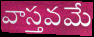
వాస్తవమే